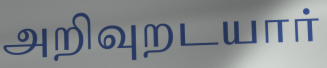
அறிவுறடயார்